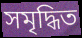
সমৃদ্ধিত